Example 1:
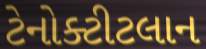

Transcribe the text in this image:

ટેનોક્ટીટલાન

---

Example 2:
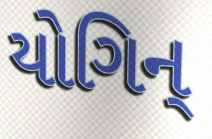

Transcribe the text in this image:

યોગિન્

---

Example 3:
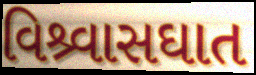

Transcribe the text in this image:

વિશ્ર્વાસઘાત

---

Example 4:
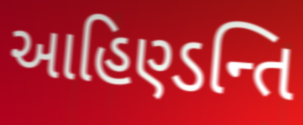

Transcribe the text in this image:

આહિણ્ડન્તિ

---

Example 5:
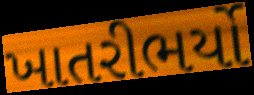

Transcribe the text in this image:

ખાતરીભર્યો